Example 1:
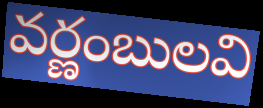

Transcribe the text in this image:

వర్ణంబులవి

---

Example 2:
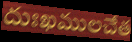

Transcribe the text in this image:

దుఃఖములచేత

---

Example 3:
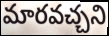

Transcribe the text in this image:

మారవచ్చని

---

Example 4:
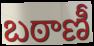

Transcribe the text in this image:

బఠాణీ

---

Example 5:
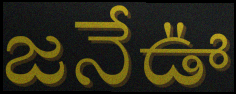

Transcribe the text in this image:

జనేఊ